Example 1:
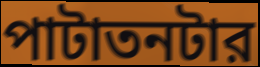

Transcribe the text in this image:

পাটাতনটার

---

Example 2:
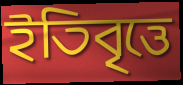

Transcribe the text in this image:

ইতিবৃত্তে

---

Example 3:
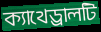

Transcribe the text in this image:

ক্যাথেড্রালটি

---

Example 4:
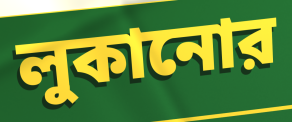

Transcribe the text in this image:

লুকানোর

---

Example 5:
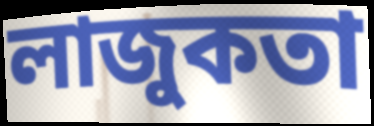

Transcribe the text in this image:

লাজুকতা